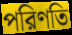
পরিণতি